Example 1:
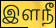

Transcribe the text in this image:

இளநீ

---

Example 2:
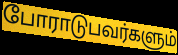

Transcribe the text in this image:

போராடுபவர்களும்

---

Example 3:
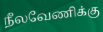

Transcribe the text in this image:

நீலவேணிக்கு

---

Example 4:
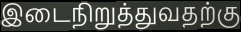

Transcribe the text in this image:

இடைநிறுத்துவதற்கு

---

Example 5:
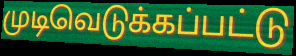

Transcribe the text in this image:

முடிவெடுக்கப்பட்டு